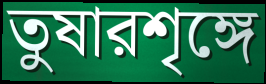
তুষারশৃঙ্গে